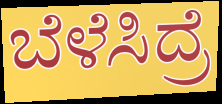
ಬೆಳೆಸಿದ್ರೆ